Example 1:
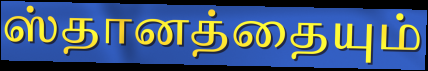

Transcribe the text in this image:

ஸ்தானத்தையும்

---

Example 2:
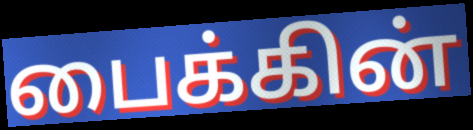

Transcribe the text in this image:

பைக்கின்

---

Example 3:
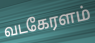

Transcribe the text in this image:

வடகேரளம்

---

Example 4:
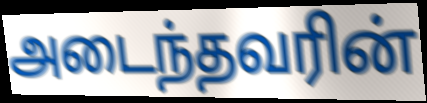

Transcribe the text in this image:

அடைந்தவரின்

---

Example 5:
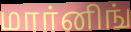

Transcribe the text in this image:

மார்னிங்